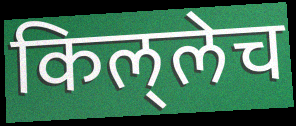
किल्लेच